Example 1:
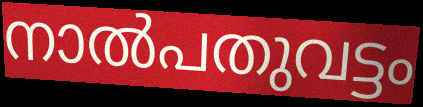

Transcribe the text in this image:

നാൽപതുവട്ടം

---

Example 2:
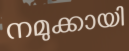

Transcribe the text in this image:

നമുക്കായി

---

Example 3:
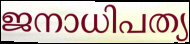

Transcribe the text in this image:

ജനാധിപത്യ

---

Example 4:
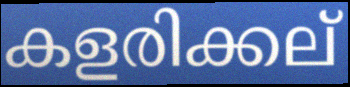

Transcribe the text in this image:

കളരിക്കല്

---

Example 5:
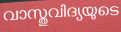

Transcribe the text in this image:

വാസ്തുവിദ്യയുടെ